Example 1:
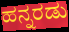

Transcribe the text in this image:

ಹನ್ನರಡು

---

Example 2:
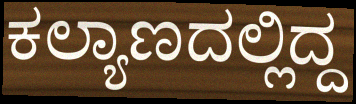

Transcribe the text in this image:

ಕಲ್ಯಾಣದಲ್ಲಿದ್ದ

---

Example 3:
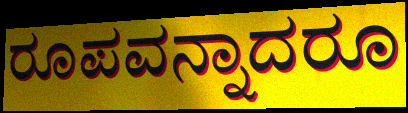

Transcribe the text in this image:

ರೂಪವನ್ನಾದರೂ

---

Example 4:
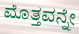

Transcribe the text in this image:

ಮೊತ್ತವನ್ನೇ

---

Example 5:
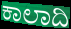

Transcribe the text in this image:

ಕಾಲಾದಿ